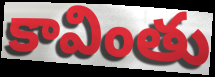
కావింతు